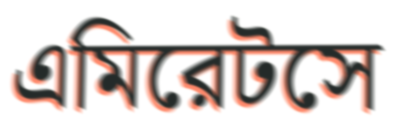
এমিরেটসে